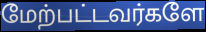
மேற்பட்டவர்களே